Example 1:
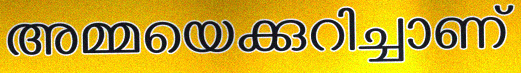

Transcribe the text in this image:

അമ്മയെക്കുറിച്ചാണ്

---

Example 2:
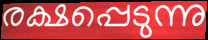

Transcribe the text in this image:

രക്ഷപ്പെടുന്നു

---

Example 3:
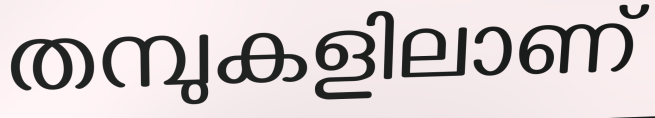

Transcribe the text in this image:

തമ്പുകളിലാണ്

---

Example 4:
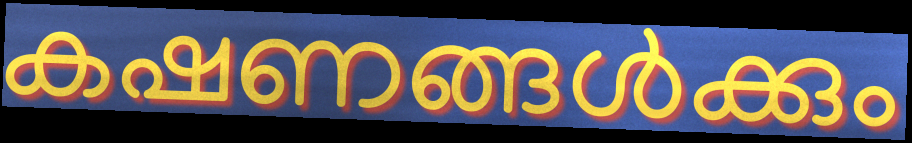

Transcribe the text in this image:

കഷണങ്ങൾക്കും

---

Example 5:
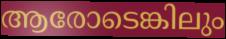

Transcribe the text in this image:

ആരോടെങ്കിലും